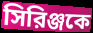
সিরিঞ্জকে